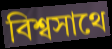
বিশ্বসাথে